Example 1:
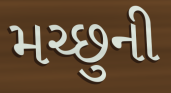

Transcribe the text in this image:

મચ્છુની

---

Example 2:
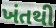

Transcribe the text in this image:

ખંતથી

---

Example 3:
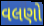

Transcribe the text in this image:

વલણો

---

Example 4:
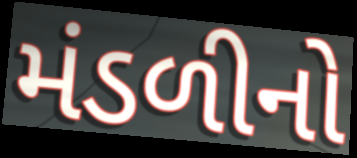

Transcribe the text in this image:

મંડળીનો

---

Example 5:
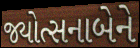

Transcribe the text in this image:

જ્યોત્સનાબેને